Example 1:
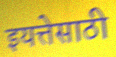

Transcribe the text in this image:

इयत्तेसाठी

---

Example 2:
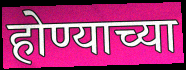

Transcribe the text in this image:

होण्‍याच्‍या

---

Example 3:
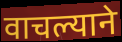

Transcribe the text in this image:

वाचल्याने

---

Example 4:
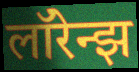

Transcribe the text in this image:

लॉरेन्झ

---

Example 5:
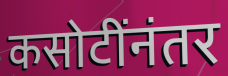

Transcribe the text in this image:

कसोटींनंतर